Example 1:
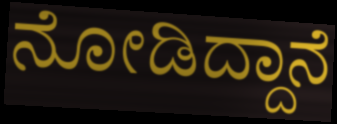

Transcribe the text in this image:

ನೋಡಿದ್ದಾನೆ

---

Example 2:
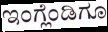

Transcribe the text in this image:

ಇಂಗ್ಲೆಂಡಿಗೂ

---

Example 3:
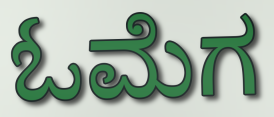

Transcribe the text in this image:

ಓಮೆಗ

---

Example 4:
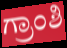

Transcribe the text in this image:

ಗ್ರಾಂಶಿ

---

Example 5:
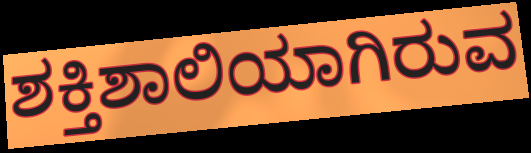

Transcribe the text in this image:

ಶಕ್ತಿಶಾಲಿಯಾಗಿರುವ